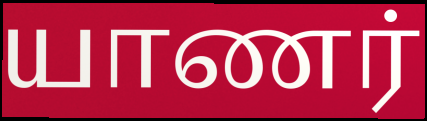
யாணர்